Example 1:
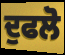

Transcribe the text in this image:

ਦੁਫਲੋ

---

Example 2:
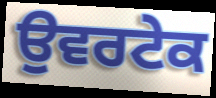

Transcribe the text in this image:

ਉਵਰਟੇਕ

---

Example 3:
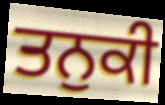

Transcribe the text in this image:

ਤਨੁਕੀ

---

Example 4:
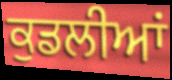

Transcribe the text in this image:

ਕੁਡਲੀਆਂ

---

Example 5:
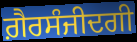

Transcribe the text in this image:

ਗ਼ੈਰਸੰਜੀਦਗੀ